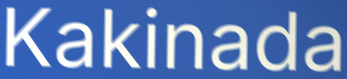
Kakinada